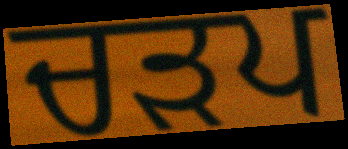
ਚੜਪ